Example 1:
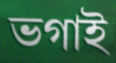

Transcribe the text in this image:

ভগাই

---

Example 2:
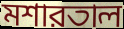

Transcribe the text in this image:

মশারতাল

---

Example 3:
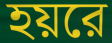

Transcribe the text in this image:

হয়রে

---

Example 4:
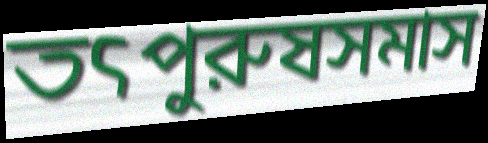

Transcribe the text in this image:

তৎপুরুষসমাস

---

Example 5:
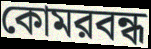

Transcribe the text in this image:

কোমরবন্ধ